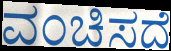
ವಂಚಿಸದೆ